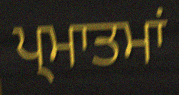
ਪ੍ਮਾਤਮਾਂ